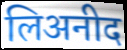
लिअनीद